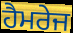
ਹੈਮਰੇਜ